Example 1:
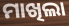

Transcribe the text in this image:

ମାଖିଲା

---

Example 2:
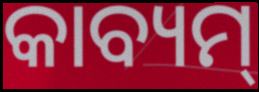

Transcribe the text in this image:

କାବ୍ୟମ୍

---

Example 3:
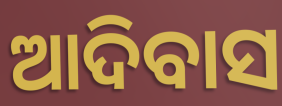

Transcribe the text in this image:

ଆଦିବାସ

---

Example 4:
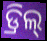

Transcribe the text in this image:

ଡ୍ରିଲ୍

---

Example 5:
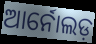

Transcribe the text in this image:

ଆର୍ନୋଲଡ଼